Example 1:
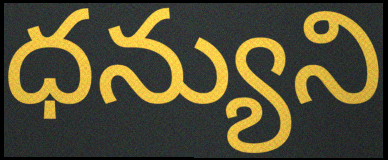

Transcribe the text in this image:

ధన్యుని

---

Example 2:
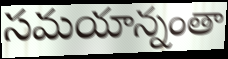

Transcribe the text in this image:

సమయాన్నంతా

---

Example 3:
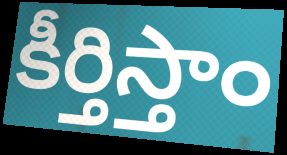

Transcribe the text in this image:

కీర్తిస్తాం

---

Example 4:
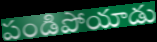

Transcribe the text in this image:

పండిపోయాడు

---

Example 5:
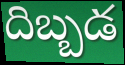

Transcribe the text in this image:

దిబ్బడ